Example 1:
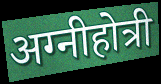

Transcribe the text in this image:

अग्नीहोत्री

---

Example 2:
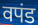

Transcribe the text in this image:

वपंड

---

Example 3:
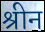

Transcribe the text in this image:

श्रीन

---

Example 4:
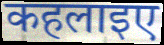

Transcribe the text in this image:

कहलाइए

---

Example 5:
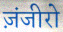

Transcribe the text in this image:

ज़ंजीरो